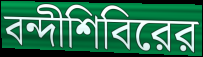
বন্দীশিবিরের